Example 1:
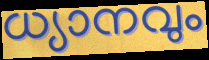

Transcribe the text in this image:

ധ്യാനവും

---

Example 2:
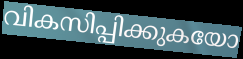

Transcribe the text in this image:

വികസിപ്പിക്കുകയോ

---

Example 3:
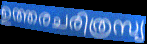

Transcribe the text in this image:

ഉത്തരചരിത്രസ്യ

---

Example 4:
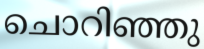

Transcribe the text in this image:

ചൊറിഞ്ഞു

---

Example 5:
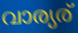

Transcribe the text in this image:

വാര്യര്